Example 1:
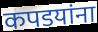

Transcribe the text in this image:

कपडयांना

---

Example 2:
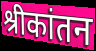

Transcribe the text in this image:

श्रीकांतन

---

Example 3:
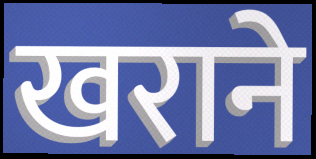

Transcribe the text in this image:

खराने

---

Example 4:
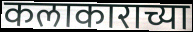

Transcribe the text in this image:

कलाकाराच्या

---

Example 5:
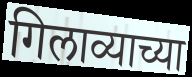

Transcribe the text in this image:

गिलाव्याच्या